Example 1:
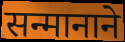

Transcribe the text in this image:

सन्मानाने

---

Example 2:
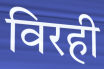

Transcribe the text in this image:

विरही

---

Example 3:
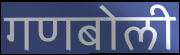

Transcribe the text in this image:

गणबोली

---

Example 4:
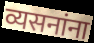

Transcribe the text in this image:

व्यसनांना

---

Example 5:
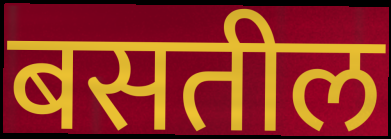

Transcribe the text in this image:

बसतील